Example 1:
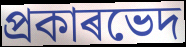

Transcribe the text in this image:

প্ৰকাৰভেদ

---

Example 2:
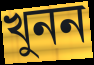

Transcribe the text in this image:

খুনন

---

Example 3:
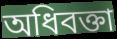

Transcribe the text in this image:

অধিবক্তা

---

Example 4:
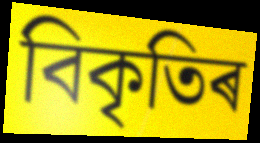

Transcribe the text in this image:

বিকৃতিৰ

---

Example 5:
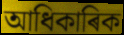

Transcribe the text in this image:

আধিকাৰিক